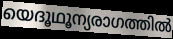
യെദൂഥൂന്യരാഗത്തിൽ